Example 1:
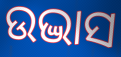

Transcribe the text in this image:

ଉଦ୍ଭାସ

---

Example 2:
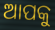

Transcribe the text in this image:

ଆପକୁ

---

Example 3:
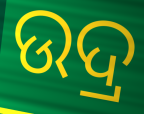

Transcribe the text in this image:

ଉଦ୍ର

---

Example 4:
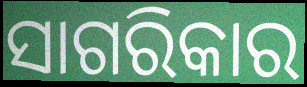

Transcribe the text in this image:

ସାଗରିକାର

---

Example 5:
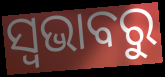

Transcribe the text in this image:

ସ୍ୱଭାବରୁ